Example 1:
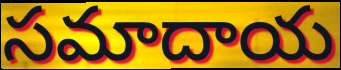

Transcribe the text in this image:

సమాదాయ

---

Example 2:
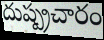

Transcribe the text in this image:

దుష్ప్రచారం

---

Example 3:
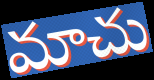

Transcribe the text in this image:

మాచు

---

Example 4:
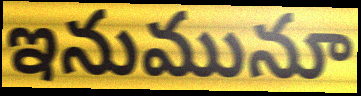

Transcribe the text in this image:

ఇనుమునూ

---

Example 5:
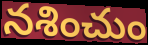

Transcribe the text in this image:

నశించుం